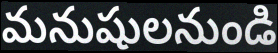
మనుషులనుండి